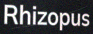
Rhizopus